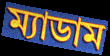
ম্যাডাম